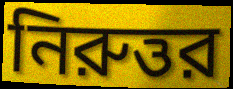
নিরুত্তর